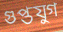
গুপ্তযুগ